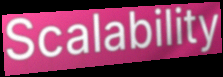
Scalability